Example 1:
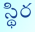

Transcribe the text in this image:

స్థిర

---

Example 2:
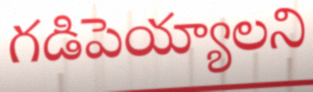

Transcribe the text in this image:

గడిపెయ్యాలని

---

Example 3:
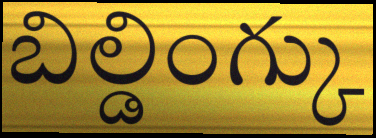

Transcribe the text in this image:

బిల్డింగ్కు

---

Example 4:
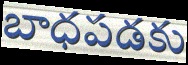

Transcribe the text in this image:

బాధపడకు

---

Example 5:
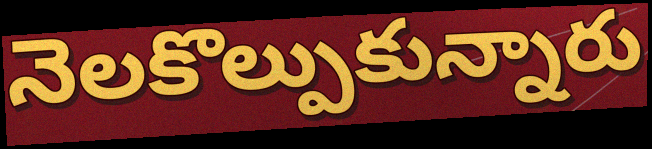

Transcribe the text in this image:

నెలకొల్పుకున్నారు